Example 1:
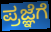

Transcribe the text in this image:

ಪ್ರಜ್ಞೆಗೆ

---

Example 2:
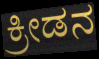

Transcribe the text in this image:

ಕ್ರೀಡನ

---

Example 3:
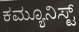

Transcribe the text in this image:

ಕಮ್ಯೂನಿಸ್ಟ್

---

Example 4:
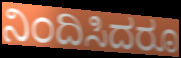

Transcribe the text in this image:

ನಿಂದಿಸಿದರೂ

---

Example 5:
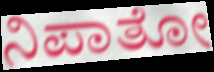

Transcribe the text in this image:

ನಿಪಾತೋ